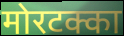
मोरटक्का